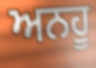
ਅਨਹੂ